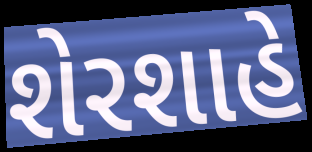
શેરશાહે